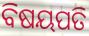
ବିଷୟପତି